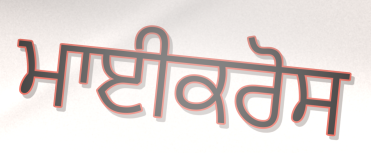
ਮਾਈਕਰੋਸ